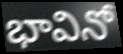
భావినో